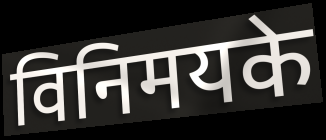
विनिमयके